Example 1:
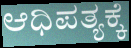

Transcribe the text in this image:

ಆಧಿಪತ್ಯಕ್ಕೆ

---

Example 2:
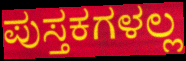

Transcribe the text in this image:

ಪುಸ್ತಕಗಳಲ್ಲ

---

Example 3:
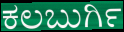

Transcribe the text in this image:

ಕಲಬುರ್ಗಿ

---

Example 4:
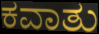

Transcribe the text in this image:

ಕವಾತು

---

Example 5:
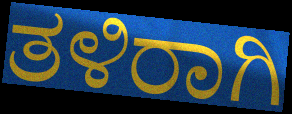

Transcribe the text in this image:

ತಳಿರಾಗಿ